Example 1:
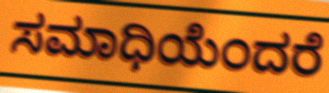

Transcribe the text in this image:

ಸಮಾಧಿಯೆಂದರೆ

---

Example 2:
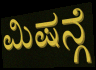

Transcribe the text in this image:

ಮಿಷನ್ಗೆ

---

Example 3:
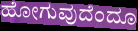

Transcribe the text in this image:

ಹೋಗುವುದೆಂದೂ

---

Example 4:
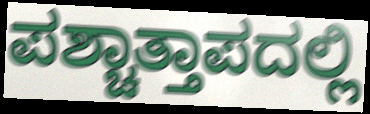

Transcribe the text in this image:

ಪಶ್ಚಾತ್ತಾಪದಲ್ಲಿ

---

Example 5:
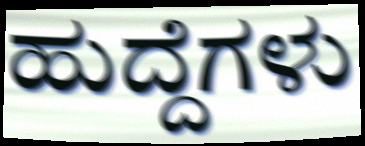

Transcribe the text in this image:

ಹುದ್ದೆಗಳು